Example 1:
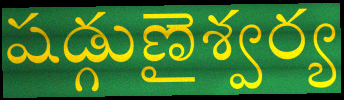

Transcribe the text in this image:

షడ్గుణైశ్వర్య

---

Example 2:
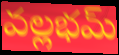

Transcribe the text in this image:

వల్లభమ్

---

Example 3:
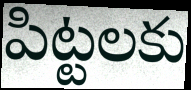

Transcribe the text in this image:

పిట్టలకు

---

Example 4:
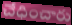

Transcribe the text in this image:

చేధించారు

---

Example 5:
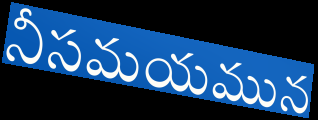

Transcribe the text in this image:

నీసమయమున